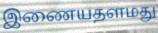
இணையதளமது